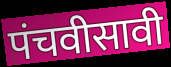
पंचवीसावी